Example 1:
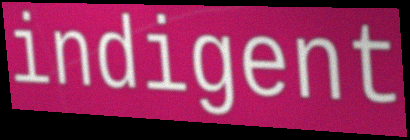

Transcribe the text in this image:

indigent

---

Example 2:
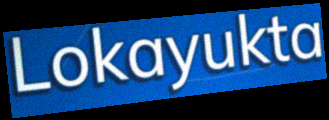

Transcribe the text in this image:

Lokayukta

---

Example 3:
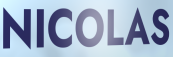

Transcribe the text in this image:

NICOLAS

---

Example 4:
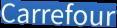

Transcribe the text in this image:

Carrefour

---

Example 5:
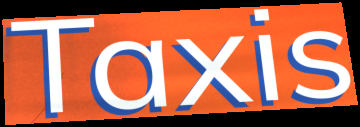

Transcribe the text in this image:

Taxis